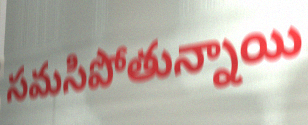
సమసిపోతున్నాయి